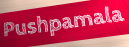
Pushpamala